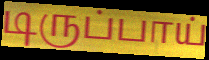
டிருப்பாய்